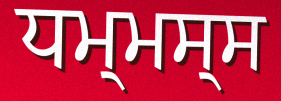
ਧਮ੍ਮਸ੍ਸ